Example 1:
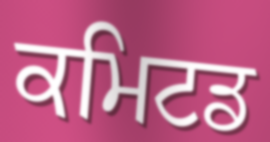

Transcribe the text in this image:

ਕਮਿਟਡ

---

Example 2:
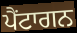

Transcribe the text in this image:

ਪੈਂਟਾਗਨ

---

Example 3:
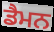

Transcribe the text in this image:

ਡੈਮਨ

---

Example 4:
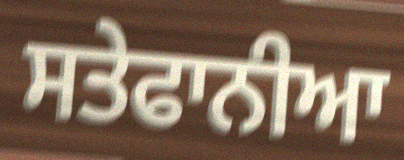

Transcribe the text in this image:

ਸਤੇਫਾਨੀਆ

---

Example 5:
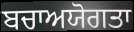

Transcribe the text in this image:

ਬਚਾਅਯੋਗਤਾ